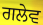
ਗਲੇਵ